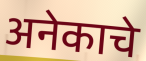
अनेकाचे